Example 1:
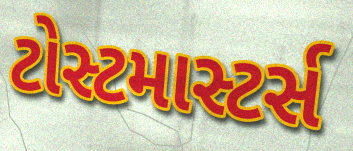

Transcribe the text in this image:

ટોસ્ટમાસ્ટર્સ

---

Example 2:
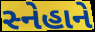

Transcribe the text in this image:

સ્નેહાને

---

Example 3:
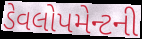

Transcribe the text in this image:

ડેવલોપમેન્ટની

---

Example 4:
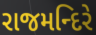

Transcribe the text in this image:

રાજમન્દિરે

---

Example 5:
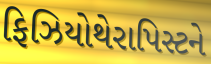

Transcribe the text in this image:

ફિઝિયોથેરાપિસ્ટને